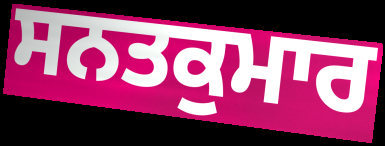
ਸਨਤਕੁਮਾਰ